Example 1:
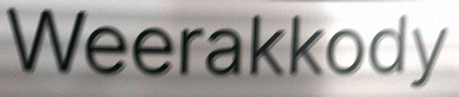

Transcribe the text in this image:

Weerakkody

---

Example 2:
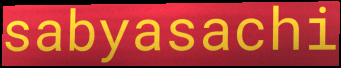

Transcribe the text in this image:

sabyasachi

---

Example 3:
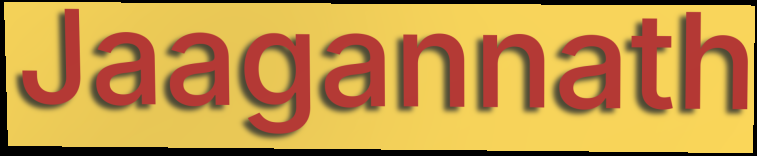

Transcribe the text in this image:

Jaagannath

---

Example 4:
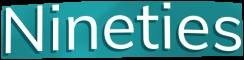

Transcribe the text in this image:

Nineties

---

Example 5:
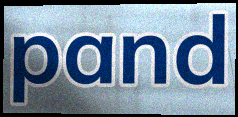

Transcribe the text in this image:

pand